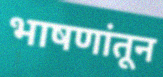
भाषणांतून